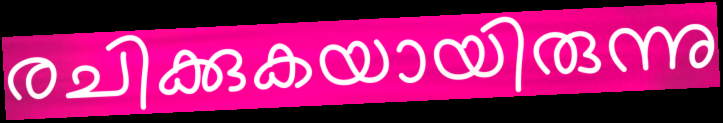
രചിക്കുകയായിരുന്നു